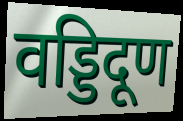
वड्डिदूण